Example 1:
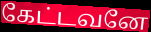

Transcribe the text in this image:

கேட்டவனே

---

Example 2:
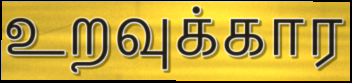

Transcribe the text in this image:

உறவுக்கார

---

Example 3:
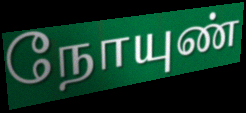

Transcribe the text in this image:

நோயுண்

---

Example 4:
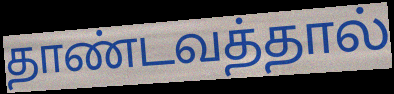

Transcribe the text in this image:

தாண்டவத்தால்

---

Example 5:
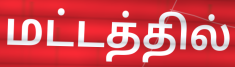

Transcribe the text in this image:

மட்டத்தில்